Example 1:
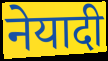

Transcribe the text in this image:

नेयादी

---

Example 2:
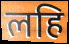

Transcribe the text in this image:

लहि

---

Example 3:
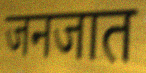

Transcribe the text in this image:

जनजात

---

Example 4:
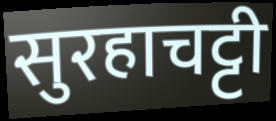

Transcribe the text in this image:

सुरहाचट्टी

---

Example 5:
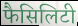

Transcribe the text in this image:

फैसिलिटी